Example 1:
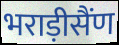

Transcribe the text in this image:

भराड़ीसैंण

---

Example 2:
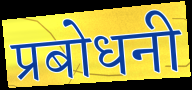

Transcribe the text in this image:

प्रबोधनी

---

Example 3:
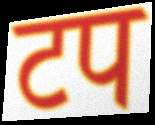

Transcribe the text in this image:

टप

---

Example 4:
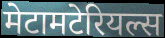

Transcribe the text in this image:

मेटामटेरियल्स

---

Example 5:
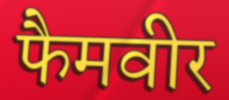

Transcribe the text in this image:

फैमवीर